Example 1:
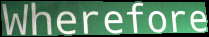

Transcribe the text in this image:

Wherefore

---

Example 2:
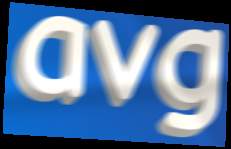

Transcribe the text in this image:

avg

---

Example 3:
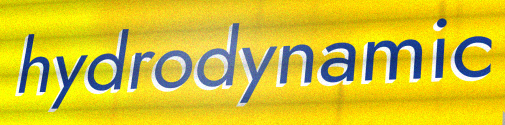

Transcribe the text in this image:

hydrodynamic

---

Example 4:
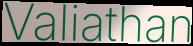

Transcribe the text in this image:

Valiathan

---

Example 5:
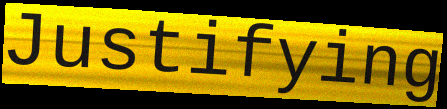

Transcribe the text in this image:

Justifying